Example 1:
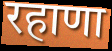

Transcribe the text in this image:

रहाणा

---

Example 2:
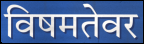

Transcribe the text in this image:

विषमतेवर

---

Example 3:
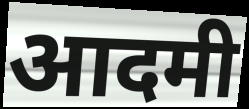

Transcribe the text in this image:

आदमी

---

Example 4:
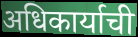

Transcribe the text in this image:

अधिकार्याची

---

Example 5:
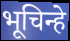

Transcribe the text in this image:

भूचिन्हे